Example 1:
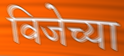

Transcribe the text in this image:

विजेच्या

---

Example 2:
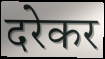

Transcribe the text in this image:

दरेकर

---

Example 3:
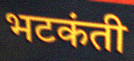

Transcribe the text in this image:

भटकंती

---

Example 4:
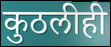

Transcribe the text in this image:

कुठलीही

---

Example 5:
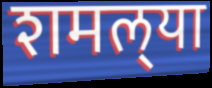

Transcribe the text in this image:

शमल्या